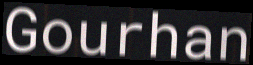
Gourhan